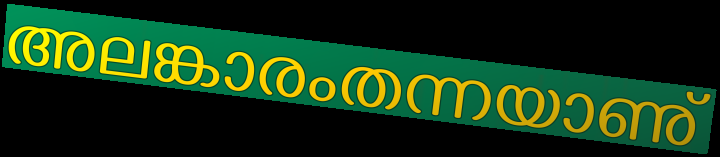
അലങ്കാരംതന്നയാണു്